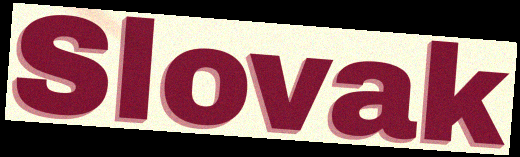
Slovak